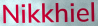
Nikkhiel